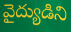
వైద్యుడిని